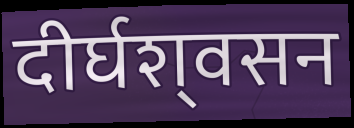
दीर्घश्वसन